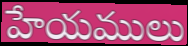
హేయములు